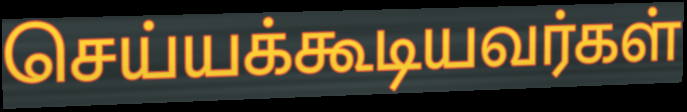
செய்யக்கூடியவர்கள்